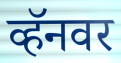
व्हॅनवर